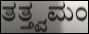
ತತ್ತ್ವಮಂ